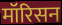
मॉरिसन